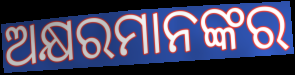
ଅକ୍ଷରମାନଙ୍କର